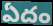
ఏదం